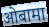
ओबामा